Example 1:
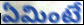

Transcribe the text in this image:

ఏమింటే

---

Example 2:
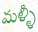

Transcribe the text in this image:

మళ్ళీ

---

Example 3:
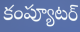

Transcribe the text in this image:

కంప్యూటర్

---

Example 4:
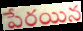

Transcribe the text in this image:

పేరయిన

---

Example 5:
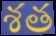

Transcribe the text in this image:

శత